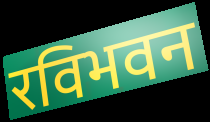
रविभवन